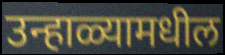
उन्हाळ्यामधील